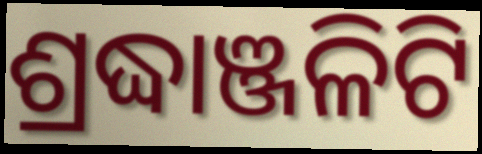
ଶ୍ରଦ୍ଧାଞ୍ଜଳିଟି